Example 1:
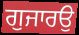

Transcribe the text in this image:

ਗੁਜਾਰਉ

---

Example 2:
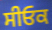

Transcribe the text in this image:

ਸੀਓਕ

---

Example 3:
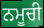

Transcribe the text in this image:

ਨਮੂਚੀ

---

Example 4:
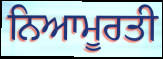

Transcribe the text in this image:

ਨਿਆਮੂਰਤੀ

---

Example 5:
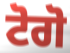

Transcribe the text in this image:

ਟੋਗੋ